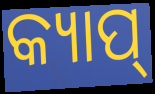
କ୍ୟାପ୍